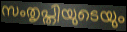
സംതൃപ്തിയുടെയും